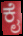
ಕೈ